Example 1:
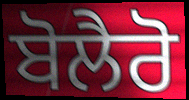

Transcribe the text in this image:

ਬੋਲੈਰੋ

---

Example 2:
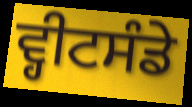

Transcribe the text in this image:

ਵ੍ਹੀਟਸੰਡੇ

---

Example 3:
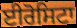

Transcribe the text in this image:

ਈਰੋਸਿਟਾ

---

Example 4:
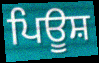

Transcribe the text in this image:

ਪਿਊਸ਼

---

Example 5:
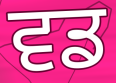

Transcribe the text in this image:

ਵਡ